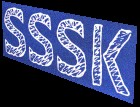
SSSK